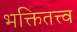
भक्तितत्त्व